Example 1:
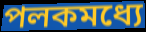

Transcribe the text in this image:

পলকমধ্যে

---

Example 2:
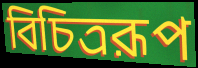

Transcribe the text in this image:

বিচিত্ররূপ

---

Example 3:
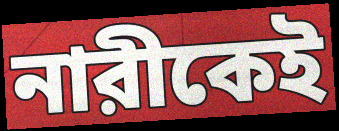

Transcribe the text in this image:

নারীকেই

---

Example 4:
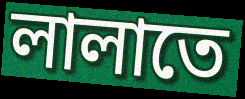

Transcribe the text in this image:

লালাতে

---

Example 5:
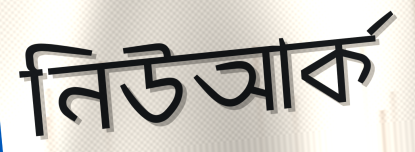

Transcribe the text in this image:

নিউআর্ক